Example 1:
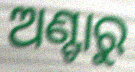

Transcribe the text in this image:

ଅଣ୍ଟାରୁ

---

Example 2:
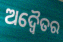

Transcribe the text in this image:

ଅଦ୍ଵୈତର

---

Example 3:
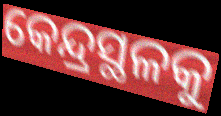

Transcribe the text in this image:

କେନ୍ଦ୍ରସ୍ଥଳକୁ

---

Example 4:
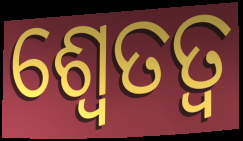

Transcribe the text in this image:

ଶ୍ୱେତତ୍ଵ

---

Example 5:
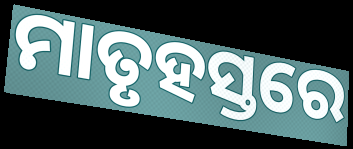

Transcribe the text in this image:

ମାତୃହସ୍ତରେ